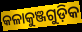
କଳାକୁଞ୍ଜଗୁଡ଼ିକ